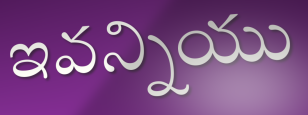
ఇవన్నియు